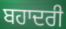
ਬਹਾਦਰੀ